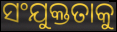
ସଂଯୁକ୍ତତାକୁ